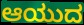
ಆಯುದ